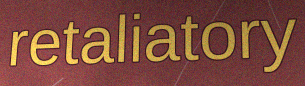
retaliatory